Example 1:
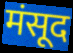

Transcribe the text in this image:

मंसूद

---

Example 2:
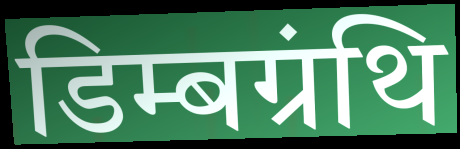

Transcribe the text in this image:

डिम्बग्रंथि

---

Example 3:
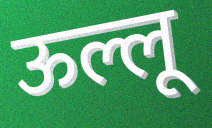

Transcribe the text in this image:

ऊल्लू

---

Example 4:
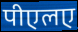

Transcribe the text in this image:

पीएलए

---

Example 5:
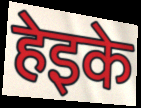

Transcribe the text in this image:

हेइके